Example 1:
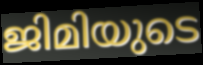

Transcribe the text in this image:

ജിമിയുടെ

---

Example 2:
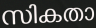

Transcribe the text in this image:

സികതാ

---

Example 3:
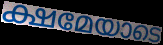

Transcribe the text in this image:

ക്ഷമേയാടെ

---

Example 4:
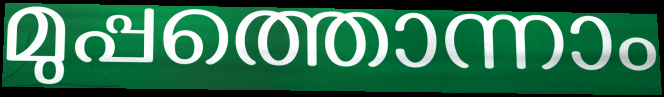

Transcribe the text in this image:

മുപ്പത്തൊന്നാം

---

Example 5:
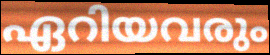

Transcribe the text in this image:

ഏറിയവരും